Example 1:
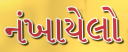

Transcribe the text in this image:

નંખાયેલો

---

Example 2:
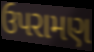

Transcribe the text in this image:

ઉપરામણ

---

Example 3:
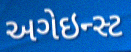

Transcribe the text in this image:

અગેઇન્સ્ટ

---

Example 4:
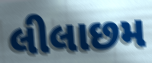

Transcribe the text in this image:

લીલાછમ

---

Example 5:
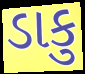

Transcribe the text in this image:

ડાકુ